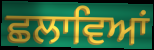
ਛਲਾਵਿਆਂ